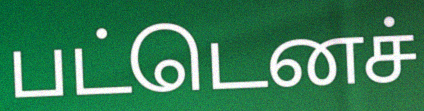
பட்டெனச்